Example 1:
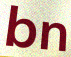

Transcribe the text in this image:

bn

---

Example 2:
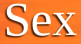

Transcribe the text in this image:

Sex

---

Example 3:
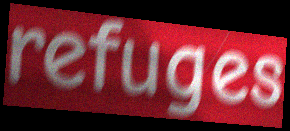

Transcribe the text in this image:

refuges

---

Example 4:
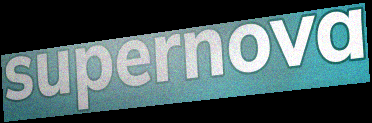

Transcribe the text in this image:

supernova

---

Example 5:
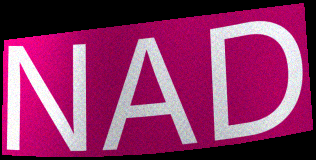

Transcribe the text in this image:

NAD